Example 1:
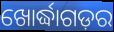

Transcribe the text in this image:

ଖୋର୍ଦ୍ଧାଗଡ଼ର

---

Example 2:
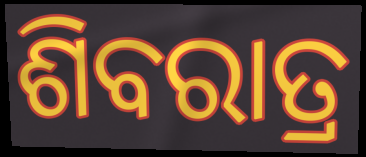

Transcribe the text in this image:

ଶିବରାତ୍ର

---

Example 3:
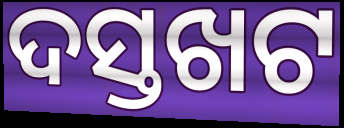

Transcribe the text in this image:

ଦସ୍ତଖଟ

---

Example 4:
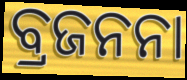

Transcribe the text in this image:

ବ୍ରଜନନା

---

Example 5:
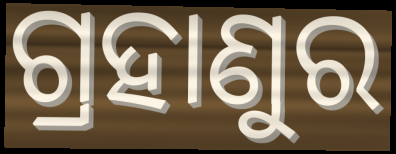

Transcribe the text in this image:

ଗ୍ରହାଣୁର